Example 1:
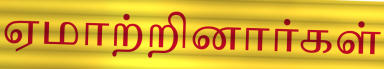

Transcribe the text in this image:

ஏமாற்றினார்கள்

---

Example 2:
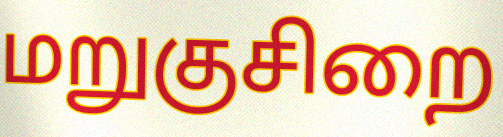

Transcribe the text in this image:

மறுகுசிறை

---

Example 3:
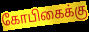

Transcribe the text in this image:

கோபிகைக்கு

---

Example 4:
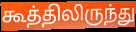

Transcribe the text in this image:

கூத்திலிருந்து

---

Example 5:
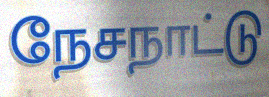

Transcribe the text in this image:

நேசநாட்டு